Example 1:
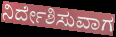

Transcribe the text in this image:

ನಿರ್ದೇಶಿಸುವಾಗ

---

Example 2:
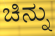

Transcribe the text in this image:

ಚಿನ್ನು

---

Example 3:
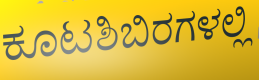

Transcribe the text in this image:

ಕೂಟಶಿಬಿರಗಳಲ್ಲಿ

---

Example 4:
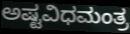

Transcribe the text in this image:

ಅಷ್ಟವಿಧಮಂತ್ರ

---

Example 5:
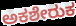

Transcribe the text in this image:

ಅಕಶೇರುಕ